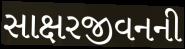
સાક્ષરજીવનની